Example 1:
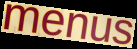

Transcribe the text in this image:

menus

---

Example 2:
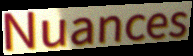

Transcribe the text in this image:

Nuances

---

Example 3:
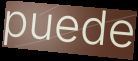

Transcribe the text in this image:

puede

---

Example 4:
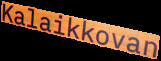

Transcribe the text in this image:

Kalaikkovan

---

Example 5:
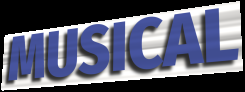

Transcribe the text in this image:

MUSICAL